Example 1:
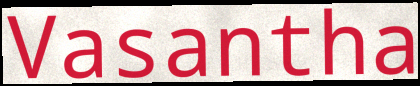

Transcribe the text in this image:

Vasantha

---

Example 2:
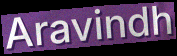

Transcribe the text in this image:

Aravindh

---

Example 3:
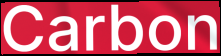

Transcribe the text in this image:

Carbon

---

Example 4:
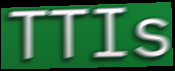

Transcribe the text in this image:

TTIs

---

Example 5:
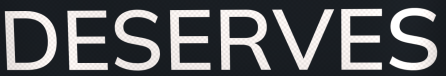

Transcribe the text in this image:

DESERVES